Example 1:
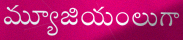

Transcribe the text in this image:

మ్యూజియంలుగా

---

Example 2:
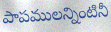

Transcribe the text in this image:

పాపములన్నింటినీ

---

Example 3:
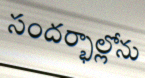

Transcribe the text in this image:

సందర్భాల్లోను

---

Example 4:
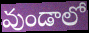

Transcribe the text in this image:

వుండాలో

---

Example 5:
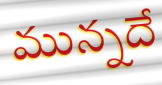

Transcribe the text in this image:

మున్నదే